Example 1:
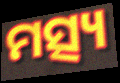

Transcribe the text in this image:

ମତ୍ସ୍ୟ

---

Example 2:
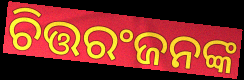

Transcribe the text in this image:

ଚିତ୍ତରଂଜନଙ୍କ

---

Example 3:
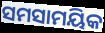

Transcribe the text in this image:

ସମସାମୟିକ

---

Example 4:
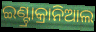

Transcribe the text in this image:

ଇଣ୍ଟ୍ରାକ୍ରାନିଆଲ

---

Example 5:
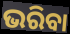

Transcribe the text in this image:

ଭରିବା